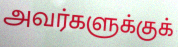
அவர்களுக்குக்